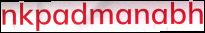
nkpadmanabh